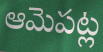
ఆమెపట్ల